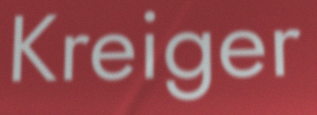
Kreiger